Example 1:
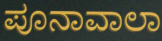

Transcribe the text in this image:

ಪೂನಾವಾಲಾ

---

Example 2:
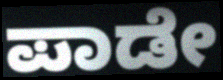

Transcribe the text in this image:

ಪಾಡೇ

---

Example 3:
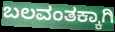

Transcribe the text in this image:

ಬಲವಂತಕ್ಕಾಗಿ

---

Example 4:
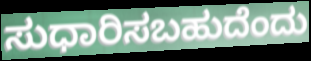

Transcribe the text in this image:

ಸುಧಾರಿಸಬಹುದೆಂದು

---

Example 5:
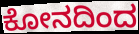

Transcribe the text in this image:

ಕೋನದಿಂದ